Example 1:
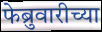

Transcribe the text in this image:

फेब्रुवारीच्या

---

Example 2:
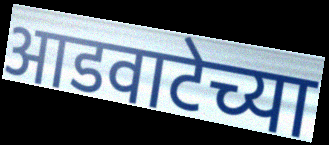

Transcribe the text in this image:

आडवाटेच्या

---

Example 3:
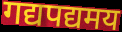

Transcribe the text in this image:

गद्यपद्यमय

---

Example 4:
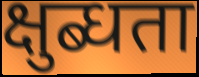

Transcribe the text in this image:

क्षुब्धता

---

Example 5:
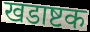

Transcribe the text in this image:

खडाष्टक